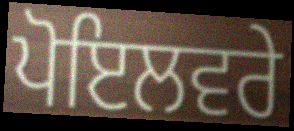
ਪੋਇਲਵਰੇ